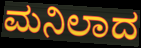
ಮನಿಲಾದ